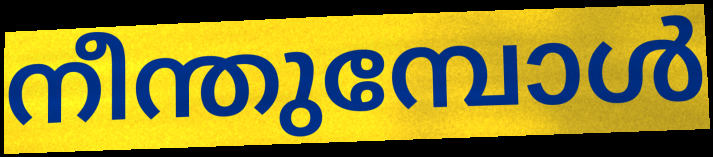
നീന്തുമ്പോൾ